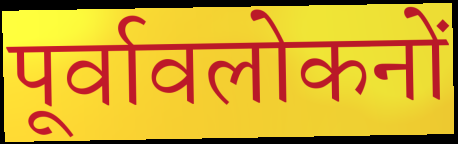
पूर्वावलोकनों